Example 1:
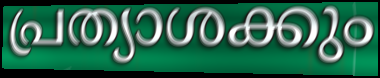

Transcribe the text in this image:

പ്രത്യാശക്കും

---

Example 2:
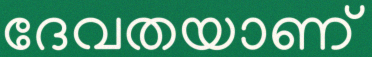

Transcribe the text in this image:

ദേവതയാണ്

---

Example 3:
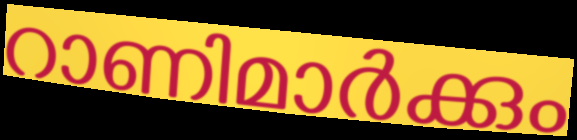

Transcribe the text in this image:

റാണിമാർക്കും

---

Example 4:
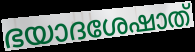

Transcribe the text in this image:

ഭയാദശേഷാത്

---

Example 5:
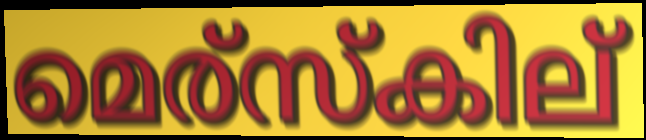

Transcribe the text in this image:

മെര്സ്കില്